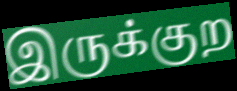
இருக்குற